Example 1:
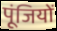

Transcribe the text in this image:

पूंजियों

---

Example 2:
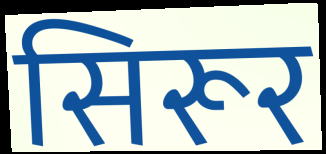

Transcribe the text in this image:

सिरूर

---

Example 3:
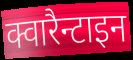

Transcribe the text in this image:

क्वारैन्टाइन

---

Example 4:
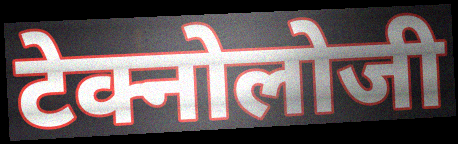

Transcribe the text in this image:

टेक्नोलोजी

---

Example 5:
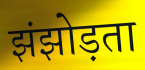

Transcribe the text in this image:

झंझोड़ता